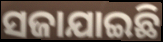
ସଜାଯାଇଛି